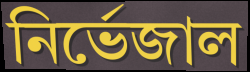
নিৰ্ভেজাল